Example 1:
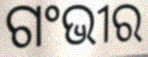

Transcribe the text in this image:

ଗଂଭୀର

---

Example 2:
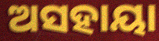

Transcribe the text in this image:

ଅସହାୟା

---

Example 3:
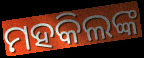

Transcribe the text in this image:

ମହକିଲଙ୍କ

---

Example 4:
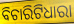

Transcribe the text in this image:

ବିଚାରିଟିଧାରା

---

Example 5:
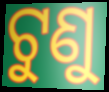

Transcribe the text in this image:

ଟୁଣୁ